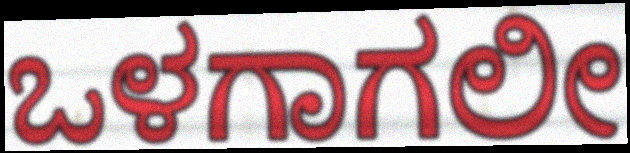
ಒಳಗಾಗಲೀ